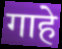
गाहे